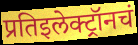
प्रतिइलेक्ट्रॉनचं